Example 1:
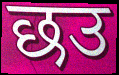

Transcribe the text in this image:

छउ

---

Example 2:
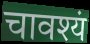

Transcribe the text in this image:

चावश्यं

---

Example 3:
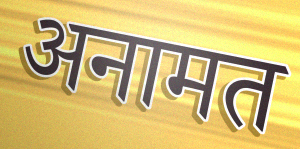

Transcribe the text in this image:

अनामत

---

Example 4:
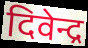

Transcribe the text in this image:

दिवेन्द्र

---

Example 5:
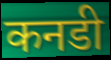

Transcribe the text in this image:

कनडी